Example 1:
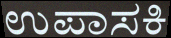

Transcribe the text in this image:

ಉಪಾಸಕಿ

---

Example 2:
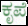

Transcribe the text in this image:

ಕೃಪೆ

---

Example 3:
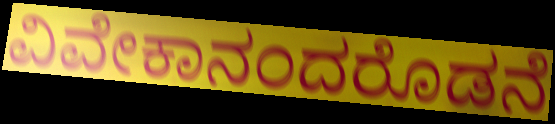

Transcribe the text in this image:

ವಿವೇಕಾನಂದರೊಡನೆ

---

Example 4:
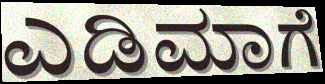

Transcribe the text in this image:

ಎಡಿಮಾಗೆ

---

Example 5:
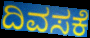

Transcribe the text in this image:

ದಿವಸಕೆ